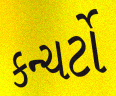
કન્ચર્ટો